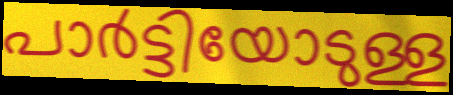
പാർട്ടിയോടുള്ള